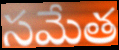
సమేత